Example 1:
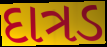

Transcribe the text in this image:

દાત્રડ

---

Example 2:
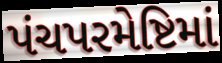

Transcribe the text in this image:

પંચપરમેષ્ટિમાં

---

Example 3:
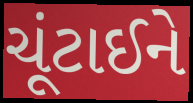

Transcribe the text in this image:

ચૂંટાઈને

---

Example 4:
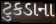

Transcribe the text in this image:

ટુકડાના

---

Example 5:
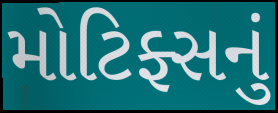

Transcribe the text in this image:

મોટિફ્સનું